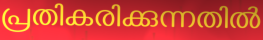
പ്രതികരിക്കുന്നതിൽ